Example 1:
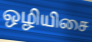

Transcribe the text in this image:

ஒழியிசை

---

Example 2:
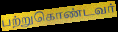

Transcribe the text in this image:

பற்றுகொண்டவர்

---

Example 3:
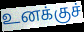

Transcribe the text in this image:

உனக்குச்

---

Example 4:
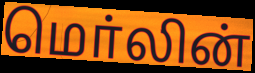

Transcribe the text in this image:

மெர்லின்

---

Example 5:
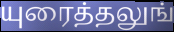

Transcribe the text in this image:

யுரைத்தலுங்